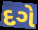
દગે